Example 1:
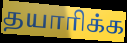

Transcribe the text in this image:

தயாரிக்க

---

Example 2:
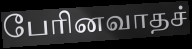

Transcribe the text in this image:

பேரினவாதச்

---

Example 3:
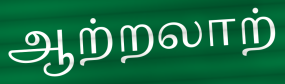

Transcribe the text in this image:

ஆற்றலாற்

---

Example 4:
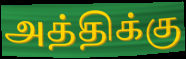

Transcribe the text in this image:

அத்திக்கு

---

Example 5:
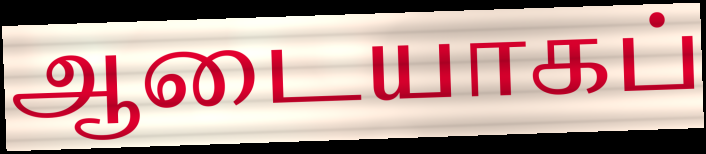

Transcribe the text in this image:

ஆடையாகப்